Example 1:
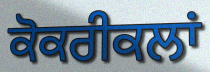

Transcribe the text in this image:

ਕੋਕਰੀਕਲਾਂ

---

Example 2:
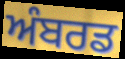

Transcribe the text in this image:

ਅੰਬਰਡ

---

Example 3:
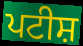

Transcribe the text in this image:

ਪਟੀਸ਼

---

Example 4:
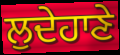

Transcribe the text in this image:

ਲੁਦੇਹਾਣੇ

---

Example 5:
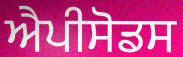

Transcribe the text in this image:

ਐਪੀਸੋਡਸ